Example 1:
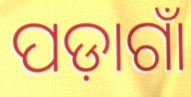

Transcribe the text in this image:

ପଡ଼ାଗାଁ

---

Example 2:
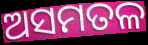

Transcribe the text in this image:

ଅସମତଳ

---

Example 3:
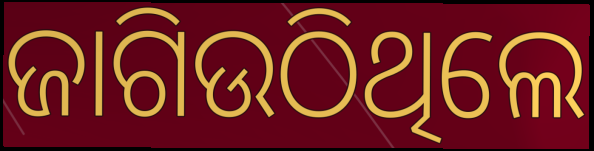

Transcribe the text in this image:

ଜାଗିଉଠିଥିଲେ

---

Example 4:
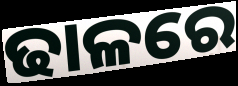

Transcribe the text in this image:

ଢାଳରେ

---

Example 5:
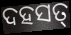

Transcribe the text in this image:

ଦହସତ୍